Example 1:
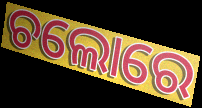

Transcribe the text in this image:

ଚଲୋରେ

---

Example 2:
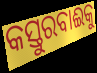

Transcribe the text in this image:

କସ୍ତୁରବାଈକୁ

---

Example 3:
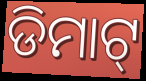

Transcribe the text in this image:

ଡିମାଟ୍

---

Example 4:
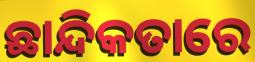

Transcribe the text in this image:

ଛାନ୍ଦିକତାରେ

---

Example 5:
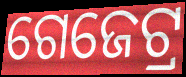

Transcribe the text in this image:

ଗେଜେଟ୍ର